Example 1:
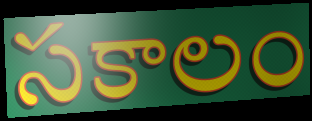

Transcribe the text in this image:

సకాలం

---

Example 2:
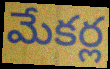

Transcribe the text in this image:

మేకర్ల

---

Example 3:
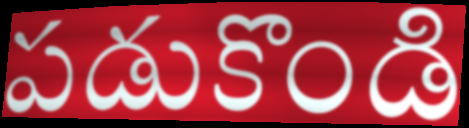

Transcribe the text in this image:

పడుకొండి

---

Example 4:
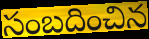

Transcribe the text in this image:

సంబదించిన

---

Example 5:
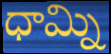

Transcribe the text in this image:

ధామ్ని